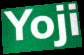
Yoji